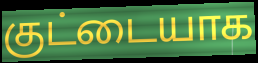
குட்டையாக